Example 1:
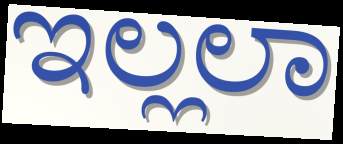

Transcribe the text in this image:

ಇಲ್ಲಲಾ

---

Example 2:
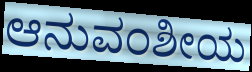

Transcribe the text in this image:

ಆನುವಂಶೀಯ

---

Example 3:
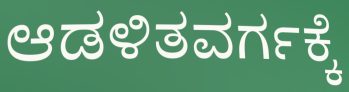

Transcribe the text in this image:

ಆಡಳಿತವರ್ಗಕ್ಕೆ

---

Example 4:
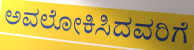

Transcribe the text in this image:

ಅವಲೋಕಿಸಿದವರಿಗೆ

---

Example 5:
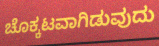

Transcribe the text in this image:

ಚೊಕ್ಕಟವಾಗಿಡುವುದು